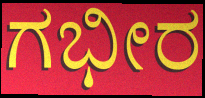
ಗಭೀರ